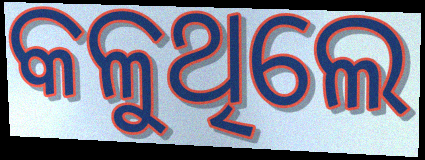
କଳୁଥିଲେ